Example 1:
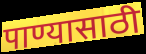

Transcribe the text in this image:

पाण्यासाठी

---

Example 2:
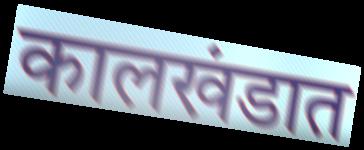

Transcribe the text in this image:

कालखंडात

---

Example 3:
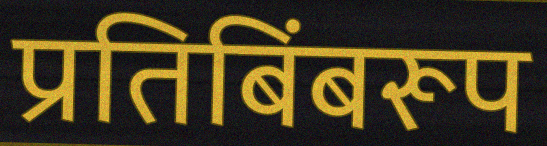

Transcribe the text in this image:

प्रतिबिंबरूप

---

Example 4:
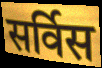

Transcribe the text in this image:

सर्विस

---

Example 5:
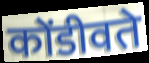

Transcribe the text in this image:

कोंडीवते